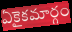
ఏకైకమార్గం